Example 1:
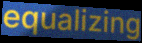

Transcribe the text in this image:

equalizing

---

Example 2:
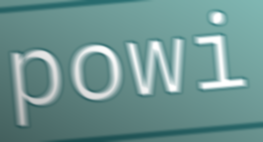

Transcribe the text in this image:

powi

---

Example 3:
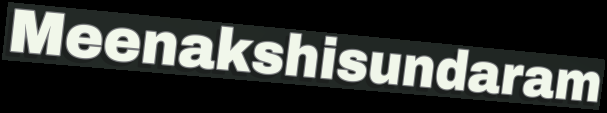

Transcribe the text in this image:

Meenakshisundaram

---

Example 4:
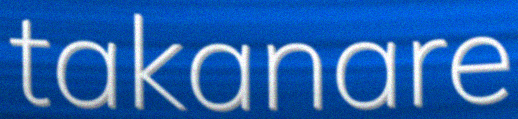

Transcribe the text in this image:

takanare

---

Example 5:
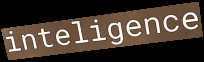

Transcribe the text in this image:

inteligence